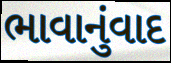
ભાવાનુંવાદ